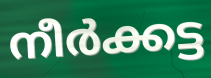
നീർക്കട്ട